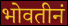
भोवतीनं